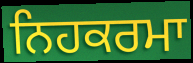
ਨਿਹਕਰਮਾ